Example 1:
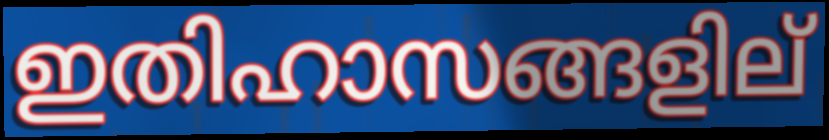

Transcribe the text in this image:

ഇതിഹാസങ്ങളില്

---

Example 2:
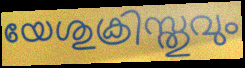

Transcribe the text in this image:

യേശുക്രിസ്തുവും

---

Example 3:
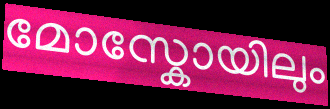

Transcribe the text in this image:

മോസ്കോയിലും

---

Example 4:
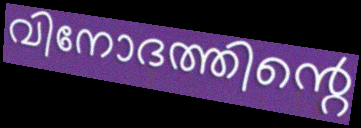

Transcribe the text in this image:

വിനോദത്തിന്റെ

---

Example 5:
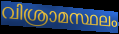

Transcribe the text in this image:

വിശ്രാമസ്ഥലം